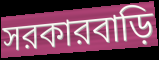
সরকারবাড়ি